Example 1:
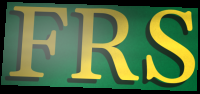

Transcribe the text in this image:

FRS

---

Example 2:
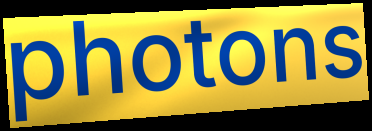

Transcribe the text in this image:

photons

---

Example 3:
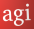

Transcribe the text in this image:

agi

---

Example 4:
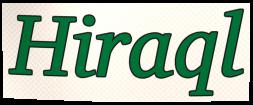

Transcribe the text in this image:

Hiraql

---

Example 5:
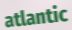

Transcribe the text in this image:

atlantic